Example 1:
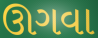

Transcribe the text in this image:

ઊગવા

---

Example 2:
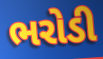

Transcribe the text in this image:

ભરોડી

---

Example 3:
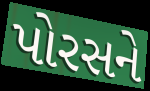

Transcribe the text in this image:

પોરસને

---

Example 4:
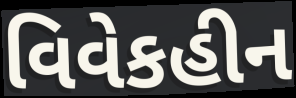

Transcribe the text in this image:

વિવેકહીન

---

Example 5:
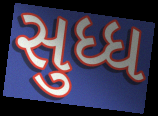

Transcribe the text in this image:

સુધ્ધ